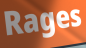
Rages